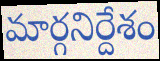
మార్గనిర్దేశం